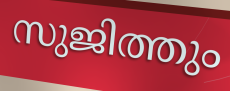
സുജിത്തും